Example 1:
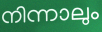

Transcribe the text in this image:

നിന്നാലും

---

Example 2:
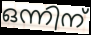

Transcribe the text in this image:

ഒന്നിന്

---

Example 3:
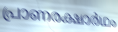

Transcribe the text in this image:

പ്രാണരക്ഷാർഥം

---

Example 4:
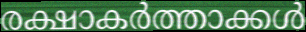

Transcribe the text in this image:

രക്ഷാകർത്താക്കൾ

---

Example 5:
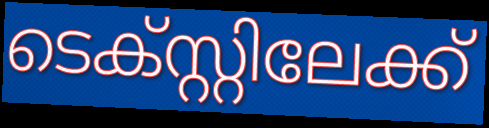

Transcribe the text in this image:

ടെക്സ്റ്റിലേക്ക്